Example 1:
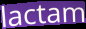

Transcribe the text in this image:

lactam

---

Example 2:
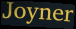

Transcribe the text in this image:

Joyner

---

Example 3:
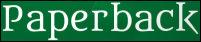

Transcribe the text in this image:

Paperback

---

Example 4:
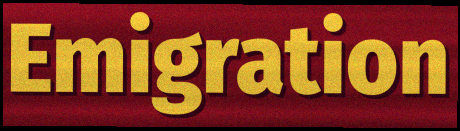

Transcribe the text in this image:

Emigration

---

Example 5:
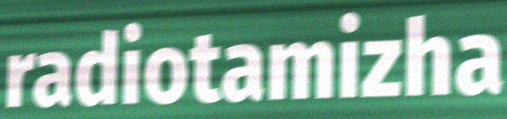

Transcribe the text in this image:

radiotamizha